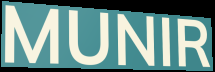
MUNIR